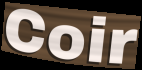
Coir